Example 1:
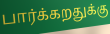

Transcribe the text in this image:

பார்க்கறதுக்கு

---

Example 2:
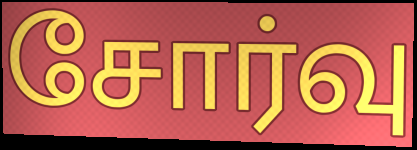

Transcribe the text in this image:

சோர்வு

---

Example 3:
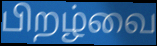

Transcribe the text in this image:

பிறழ்வை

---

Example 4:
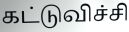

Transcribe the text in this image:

கட்டுவிச்சி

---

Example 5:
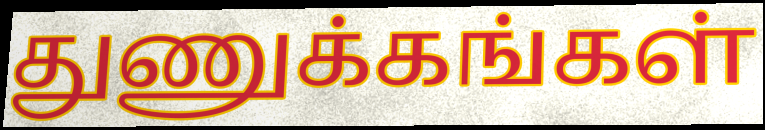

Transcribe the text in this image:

துணுக்கங்கள்